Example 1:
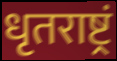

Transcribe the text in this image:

धृतराष्ट्रं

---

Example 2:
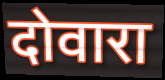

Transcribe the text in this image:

दोवारा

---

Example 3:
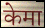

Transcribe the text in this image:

केमा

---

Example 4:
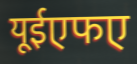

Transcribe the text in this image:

यूईएफए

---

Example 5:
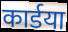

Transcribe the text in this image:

कार्डया